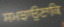
ਸਮਝਾਉਣਾਕਿ